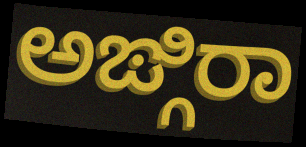
ಅಙ್ಗಿರಾ